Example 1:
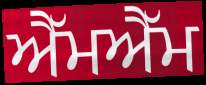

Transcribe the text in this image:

ਐੱਮਐੱਮ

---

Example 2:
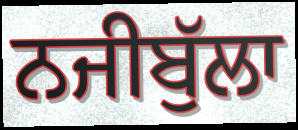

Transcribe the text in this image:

ਨਜੀਬੁੱਲਾ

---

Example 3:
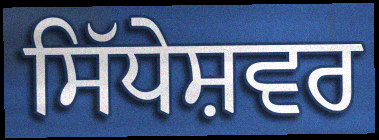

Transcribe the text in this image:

ਸਿੱਧੇਸ਼ਵਰ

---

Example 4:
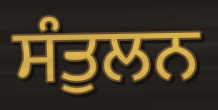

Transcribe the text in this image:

ਸੰਤੁਲਨ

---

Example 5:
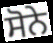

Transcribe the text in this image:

ਸੋਨੇ